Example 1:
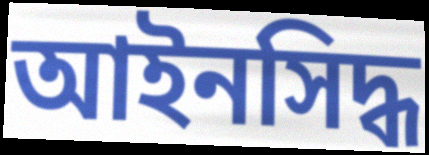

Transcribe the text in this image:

আইনসিদ্ধ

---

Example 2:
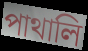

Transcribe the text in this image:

পাথালি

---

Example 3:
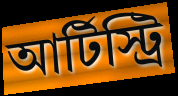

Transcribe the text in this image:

আর্টিস্ট্রি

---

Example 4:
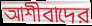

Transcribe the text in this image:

আশীবাদের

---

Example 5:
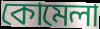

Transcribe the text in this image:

কোমেলা